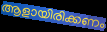
ആളായിരിക്കണം